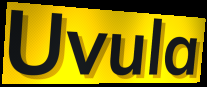
Uvula